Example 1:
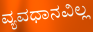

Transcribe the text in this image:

ವ್ಯವಧಾನವಿಲ್ಲ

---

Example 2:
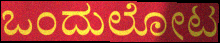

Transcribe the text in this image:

ಒಂದುಲೋಟ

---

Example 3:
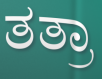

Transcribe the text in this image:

ತತ್ರಾ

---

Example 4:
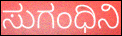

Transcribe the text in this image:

ಸುಗಂಧಿನಿ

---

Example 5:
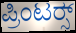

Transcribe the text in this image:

ಪ್ರಿಂಟರ‍್ಸ್